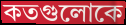
কতগুলোকে